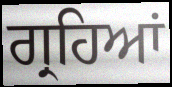
ਗ੍ਰਹਿਆਂ